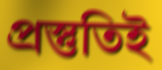
প্রস্তুতিই